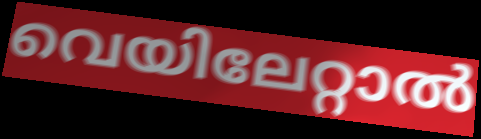
വെയിലേറ്റാൽ